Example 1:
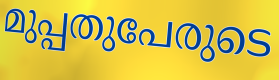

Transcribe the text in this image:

മുപ്പതുപേരുടെ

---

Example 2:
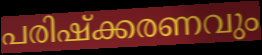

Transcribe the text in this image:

പരിഷ്ക്കരണവും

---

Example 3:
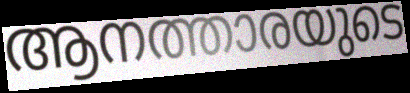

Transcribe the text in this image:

ആനത്താരയുടെ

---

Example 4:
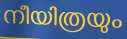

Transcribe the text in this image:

നീയിത്രയും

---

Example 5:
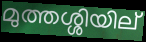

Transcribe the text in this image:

മുത്തശ്ശിയില്